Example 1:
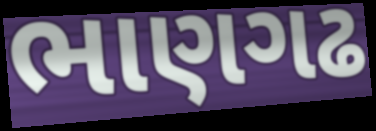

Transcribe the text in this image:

ભાણગઢ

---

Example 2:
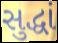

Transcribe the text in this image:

સુદ્ધાં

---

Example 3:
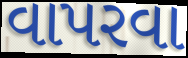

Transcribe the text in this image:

વાપરવા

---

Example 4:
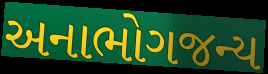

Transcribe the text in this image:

અનાભોગજન્ય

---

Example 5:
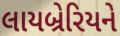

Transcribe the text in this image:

લાયબ્રેરિયને